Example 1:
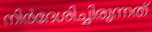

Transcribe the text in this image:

നിർദേശിച്ചിരുന്നത്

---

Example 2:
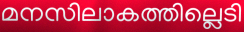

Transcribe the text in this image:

മനസിലാകത്തില്ലെടി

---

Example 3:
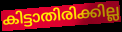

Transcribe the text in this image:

കിട്ടാതിരിക്കില്ല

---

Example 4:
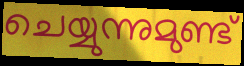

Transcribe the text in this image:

ചെയ്യുന്നുമുണ്ട്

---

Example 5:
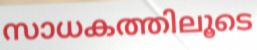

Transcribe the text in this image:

സാധകത്തിലൂടെ